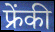
फ्रेंकी